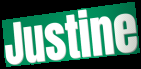
Justine